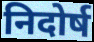
निदोर्ष